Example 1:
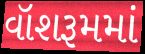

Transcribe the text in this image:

વૉશરૂમમાં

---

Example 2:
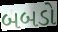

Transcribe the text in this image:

બબડો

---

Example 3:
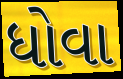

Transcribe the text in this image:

ધોવા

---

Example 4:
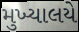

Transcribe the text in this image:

મુખ્યાલયે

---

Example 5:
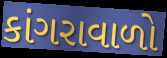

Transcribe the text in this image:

કાંગરાવાળો